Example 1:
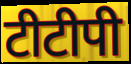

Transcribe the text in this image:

टीटीपी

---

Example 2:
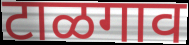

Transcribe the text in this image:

टाळगाव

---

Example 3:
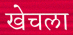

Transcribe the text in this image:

खेचला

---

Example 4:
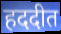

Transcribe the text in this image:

हददीत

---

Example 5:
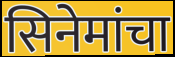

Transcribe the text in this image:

सिनेमांचा